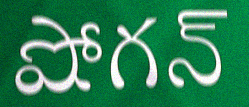
షోగన్